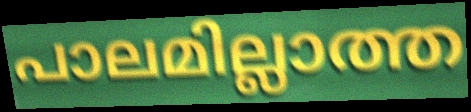
പാലമില്ലാത്ത